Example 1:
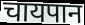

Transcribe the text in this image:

चायपान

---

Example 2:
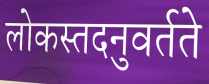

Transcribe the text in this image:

लोकस्तदनुवर्तते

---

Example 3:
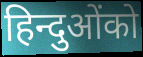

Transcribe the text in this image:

हिन्दुओंको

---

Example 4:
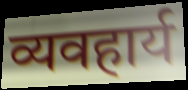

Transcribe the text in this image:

व्यवहार्य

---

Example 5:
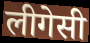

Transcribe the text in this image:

लीगेसी